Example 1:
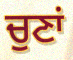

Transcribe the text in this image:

ਚੁਣਾਂ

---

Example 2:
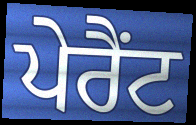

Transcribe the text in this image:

ਪੇਰੈਂਟ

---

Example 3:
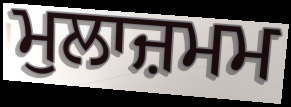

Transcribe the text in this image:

ਮੁਲਾਜ਼ਮਮ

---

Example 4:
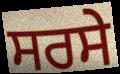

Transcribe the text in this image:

ਸਰਸੇ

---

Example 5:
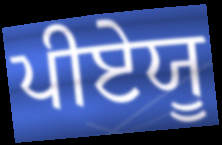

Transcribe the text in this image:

ਪੀਏਯੂ